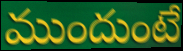
ముందుంటే